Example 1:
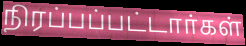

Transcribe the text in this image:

நிரப்பப்பட்டார்கள்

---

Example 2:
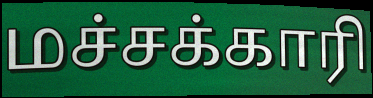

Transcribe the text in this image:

மச்சக்காரி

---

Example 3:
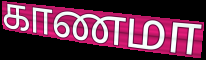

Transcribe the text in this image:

காணமா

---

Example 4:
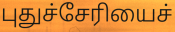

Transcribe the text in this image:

புதுச்சேரியைச்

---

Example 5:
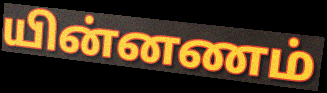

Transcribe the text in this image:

யின்னணம்